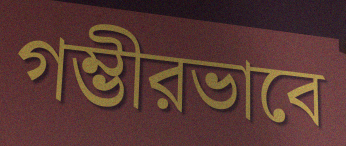
গম্ভীরভাবে